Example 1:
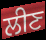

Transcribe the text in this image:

ਲੀਣ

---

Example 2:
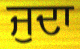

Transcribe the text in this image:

ਜੁਦਾ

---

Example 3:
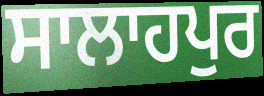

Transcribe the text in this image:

ਸਾਲਾਹਪੁਰ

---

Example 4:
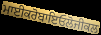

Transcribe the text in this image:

ਮਾਈਕਰੋਬਾਇਓਲੋਜੀਕਲ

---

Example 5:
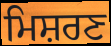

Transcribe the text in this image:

ਮਿਸ਼ਰਣ